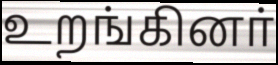
உறங்கினர்